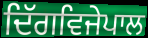
ਦਿੱਗਵਿਜੇਪਾਲ